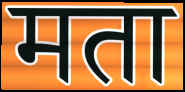
मता